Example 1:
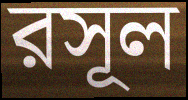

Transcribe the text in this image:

রসূল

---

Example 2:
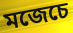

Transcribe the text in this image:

মজেচে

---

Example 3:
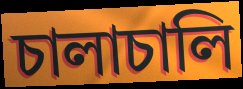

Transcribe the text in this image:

চালাচালি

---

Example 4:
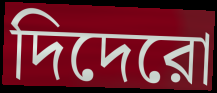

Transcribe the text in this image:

দিদেরো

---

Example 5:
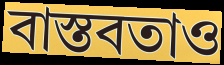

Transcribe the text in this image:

বাস্তবতাও